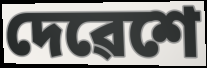
দেৱেশে